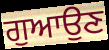
ਗੁਆਉਣ